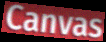
Canvas